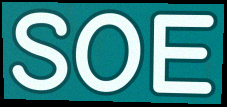
SOE